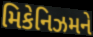
મિકેનિઝમને